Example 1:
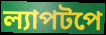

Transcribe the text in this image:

ল্যাপটপে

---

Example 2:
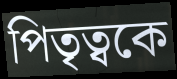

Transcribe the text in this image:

পিতৃত্বকে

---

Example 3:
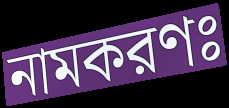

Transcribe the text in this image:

নামকরণঃ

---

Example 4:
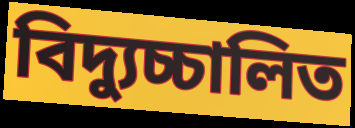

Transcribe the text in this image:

বিদ্যুচ্চালিত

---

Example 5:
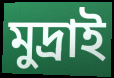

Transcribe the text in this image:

মুদ্রাই